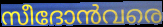
സീദോൻവരെ